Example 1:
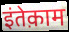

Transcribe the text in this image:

इंतेक़ाम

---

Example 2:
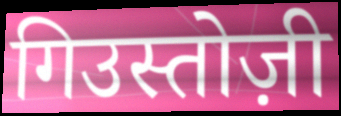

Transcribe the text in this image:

गिउस्तोज़ी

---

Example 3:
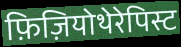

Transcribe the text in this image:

फ़िज़ियोथेरेपिस्ट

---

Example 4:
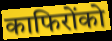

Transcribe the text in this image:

काफिरोंको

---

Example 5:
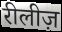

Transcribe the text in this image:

रीलीज़